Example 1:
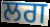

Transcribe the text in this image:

ਲਗ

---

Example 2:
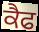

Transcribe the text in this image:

ਕੈਫ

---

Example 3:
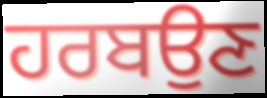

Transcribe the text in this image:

ਹਰਬਉਣ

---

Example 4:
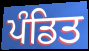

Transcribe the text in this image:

ਪੰਡਿਤ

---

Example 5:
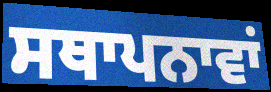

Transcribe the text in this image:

ਸਥਾਪਨਾਵਾਂ